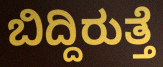
ಬಿದ್ದಿರುತ್ತೆ